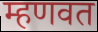
म्हणवत